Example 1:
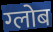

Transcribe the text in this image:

ग्‍लोब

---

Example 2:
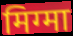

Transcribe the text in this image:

मिग्मा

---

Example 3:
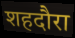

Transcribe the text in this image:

शहदौरा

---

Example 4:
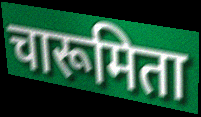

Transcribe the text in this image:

चारूमिता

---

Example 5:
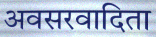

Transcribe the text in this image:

अवसरवादिता